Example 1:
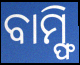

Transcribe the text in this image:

ବାମ୍ଫି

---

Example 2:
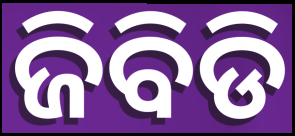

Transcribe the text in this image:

ଜିବିଡି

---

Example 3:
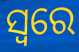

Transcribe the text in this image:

ସ୍ବରେ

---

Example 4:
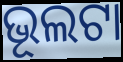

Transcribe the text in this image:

ଭୂଲଟା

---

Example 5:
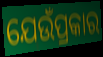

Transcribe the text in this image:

ଯେଉଁପ୍ରକାର